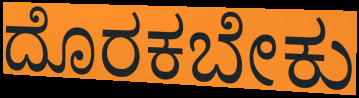
ದೊರಕಬೇಕು